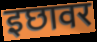
इछावर